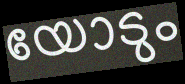
യോടും